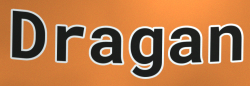
Dragan